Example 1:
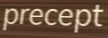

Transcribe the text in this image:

precept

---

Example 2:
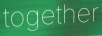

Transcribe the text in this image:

together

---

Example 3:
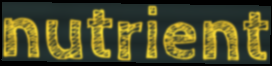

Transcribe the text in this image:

nutrient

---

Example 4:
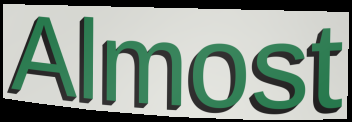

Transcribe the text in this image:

Almost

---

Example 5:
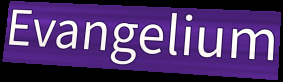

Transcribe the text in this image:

Evangelium